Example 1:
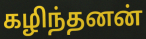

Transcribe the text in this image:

கழிந்தனன்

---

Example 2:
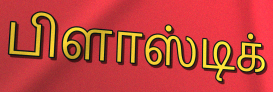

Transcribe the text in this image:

பிளாஸ்டிக்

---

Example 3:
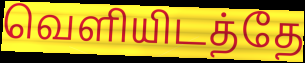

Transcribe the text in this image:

வெளியிடத்தே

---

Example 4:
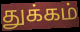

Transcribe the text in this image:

துக்கம்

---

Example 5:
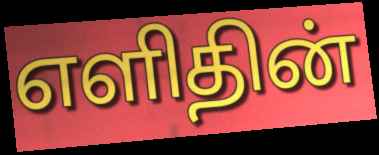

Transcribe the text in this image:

எளிதின்